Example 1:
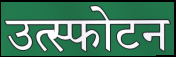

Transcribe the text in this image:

उत्स्फोटन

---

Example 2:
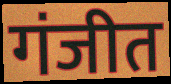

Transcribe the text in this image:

गंजीत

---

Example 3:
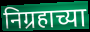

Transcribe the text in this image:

निग्रहाच्या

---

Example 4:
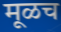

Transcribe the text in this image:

मूळच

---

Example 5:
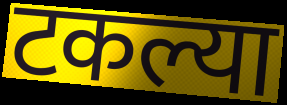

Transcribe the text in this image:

टकल्या